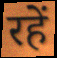
रहें